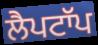
ਲੈਪਟਾੱਪ